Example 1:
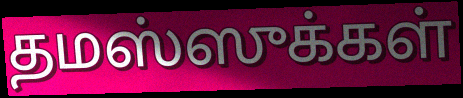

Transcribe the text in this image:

தமஸ்ஸுக்கள்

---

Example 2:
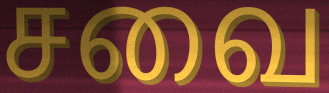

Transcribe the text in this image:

சவை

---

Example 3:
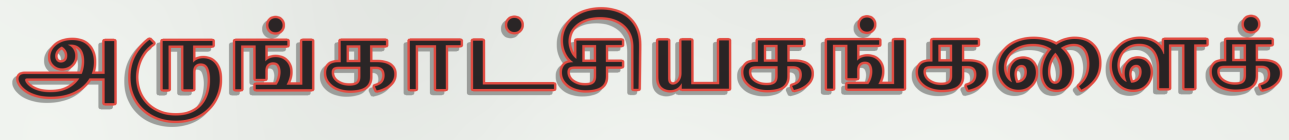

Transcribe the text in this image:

அருங்காட்சியகங்களைக்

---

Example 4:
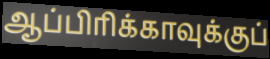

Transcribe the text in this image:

ஆப்பிரிக்காவுக்குப்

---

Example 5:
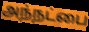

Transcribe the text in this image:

அந்நட்பை